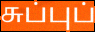
சுப்புப்